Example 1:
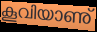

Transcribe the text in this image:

കൂവിയാണു്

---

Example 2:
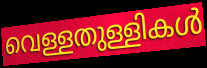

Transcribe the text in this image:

വെള്ളതുള്ളികൾ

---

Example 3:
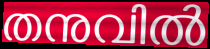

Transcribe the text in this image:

തനുവിൽ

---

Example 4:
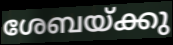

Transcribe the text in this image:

ശേബയ്ക്കു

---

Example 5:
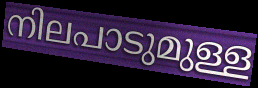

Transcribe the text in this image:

നിലപാടുമുള്ള